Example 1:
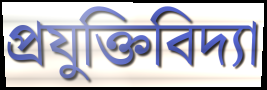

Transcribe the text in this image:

প্ৰযুক্তিবিদ্যা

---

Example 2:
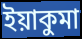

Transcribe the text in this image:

ইয়াকুমা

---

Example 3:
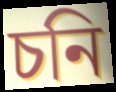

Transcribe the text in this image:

চনি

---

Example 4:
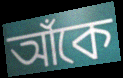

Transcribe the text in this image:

আঁকে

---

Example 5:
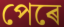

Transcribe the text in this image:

পেৰে